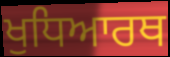
ਖੁਧਿਆਰਥ